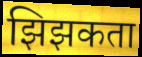
झिझकता